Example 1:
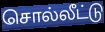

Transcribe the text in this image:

சொல்லீட்டு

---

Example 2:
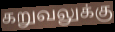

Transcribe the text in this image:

கறுவலுக்கு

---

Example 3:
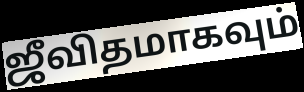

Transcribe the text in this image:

ஜீவிதமாகவும்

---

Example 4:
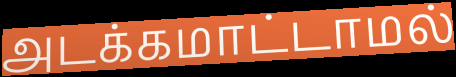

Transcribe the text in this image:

அடக்கமாட்டாமல்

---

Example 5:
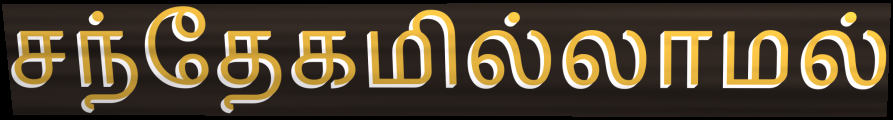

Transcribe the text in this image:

சந்தேகமில்லாமல்